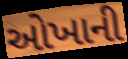
ઓખાની